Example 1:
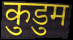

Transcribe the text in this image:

कुडुम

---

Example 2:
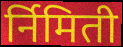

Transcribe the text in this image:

र्निमिती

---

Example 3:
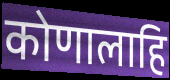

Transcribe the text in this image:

कोणालाहि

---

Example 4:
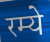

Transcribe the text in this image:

रम्ये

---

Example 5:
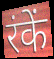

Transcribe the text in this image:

रंकें